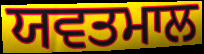
ਯਵਤਮਾਲ